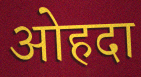
ओहदा